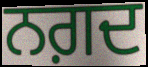
ਨਗ਼ਦ